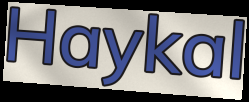
Haykal